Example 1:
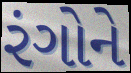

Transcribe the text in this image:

રંગોને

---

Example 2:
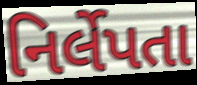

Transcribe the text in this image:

નિર્લેપતા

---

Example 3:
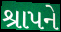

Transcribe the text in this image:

શ્રાપને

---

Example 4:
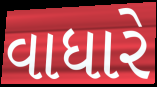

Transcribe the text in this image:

વાધારે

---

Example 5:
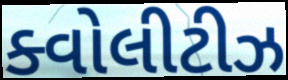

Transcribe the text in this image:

ક્વોલીટીઝ